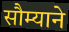
सौम्याने